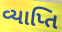
વ્યાપ્તિ